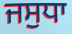
ਜਸੁਧਾ